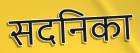
सदनिका